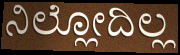
ನಿಲ್ಲೋದಿಲ್ಲ